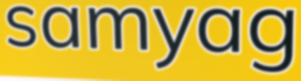
samyag